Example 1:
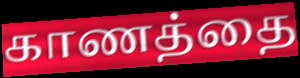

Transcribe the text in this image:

காணத்தை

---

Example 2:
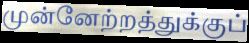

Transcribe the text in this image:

முன்னேற்றத்துக்குப்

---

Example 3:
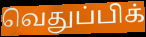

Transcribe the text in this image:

வெதுப்பிக்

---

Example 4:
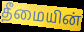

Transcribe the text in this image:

தீமையின்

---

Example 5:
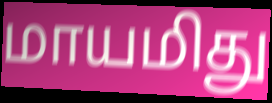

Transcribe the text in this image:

மாயமிது